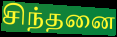
சிந்தனை